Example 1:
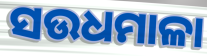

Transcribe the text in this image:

ସଉଧମାଳା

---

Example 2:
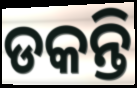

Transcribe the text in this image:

ଡକନ୍ତି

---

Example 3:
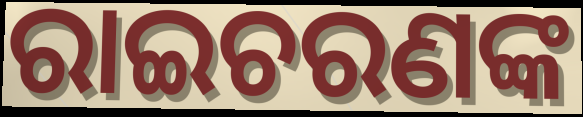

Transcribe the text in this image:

ରାଇଚରଣଙ୍କ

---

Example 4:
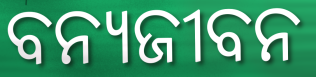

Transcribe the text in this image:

ବନ୍ୟଜୀବନ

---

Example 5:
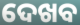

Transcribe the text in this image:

ଦେଖବ